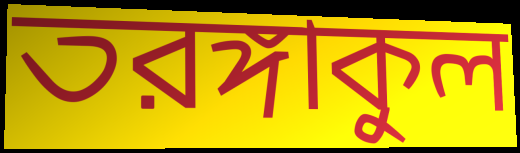
তরঙ্গাকুল